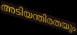
അടിയന്തിരതയും